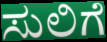
ಸುಲಿಗೆ